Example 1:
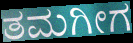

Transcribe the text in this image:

ತಮಗೀಗ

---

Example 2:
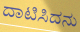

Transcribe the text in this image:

ದಾಟಿಸಿದನು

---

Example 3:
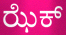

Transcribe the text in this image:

ಝೆಕ್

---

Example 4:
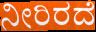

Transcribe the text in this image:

ನೀರಿರದೆ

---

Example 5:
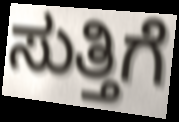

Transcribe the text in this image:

ಸುತ್ತಿಗೆ